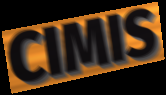
CIMIS